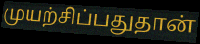
முயற்சிப்பதுதான்